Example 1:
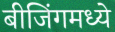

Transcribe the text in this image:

बीजिंगमध्ये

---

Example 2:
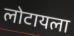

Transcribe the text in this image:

लोटायला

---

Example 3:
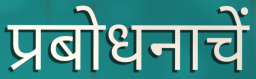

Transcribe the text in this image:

प्रबोधनाचें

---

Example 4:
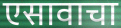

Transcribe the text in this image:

एसावाचा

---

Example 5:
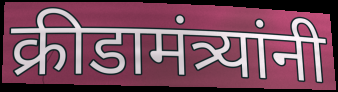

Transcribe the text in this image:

क्रीडामंत्र्यांनी